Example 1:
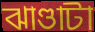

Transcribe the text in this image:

ঝাণ্ডাটা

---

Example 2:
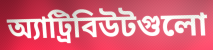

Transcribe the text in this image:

অ্যাট্রিবিউটগুলো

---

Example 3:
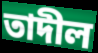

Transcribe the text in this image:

তাদীল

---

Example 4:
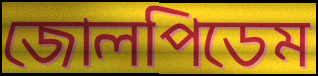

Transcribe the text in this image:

জোলপিডেম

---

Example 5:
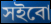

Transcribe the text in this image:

সইবো